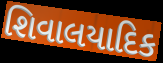
શિવાલયાદિક